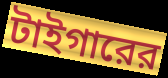
টাইগারের